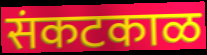
संकटकाळ